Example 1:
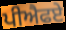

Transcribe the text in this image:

ਪੀਐਫਏ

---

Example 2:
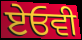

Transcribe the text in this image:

ਏਓਵੀ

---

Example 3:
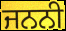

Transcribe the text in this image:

ਜਨਨੀ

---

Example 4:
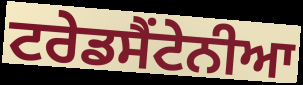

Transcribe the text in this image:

ਟਰੇਡਸੈਂਟੇਨੀਆ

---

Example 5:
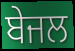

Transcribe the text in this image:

ਬੇਜਲ